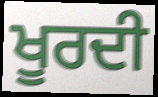
ਖੂਰਦੀ